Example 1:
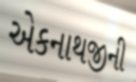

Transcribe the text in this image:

એકનાથજીની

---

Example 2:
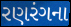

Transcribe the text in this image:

રણરંગના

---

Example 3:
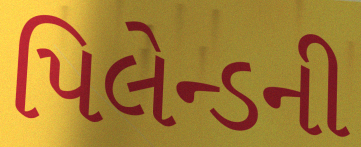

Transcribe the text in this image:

પિલેન્ડની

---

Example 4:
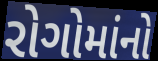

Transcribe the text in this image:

રોગોમાંનો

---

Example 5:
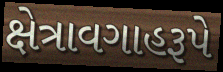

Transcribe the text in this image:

ક્ષેત્રાવગાહરૂપે